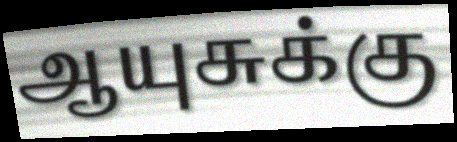
ஆயுசுக்கு